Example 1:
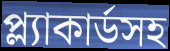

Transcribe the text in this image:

প্ল্যাকার্ডসহ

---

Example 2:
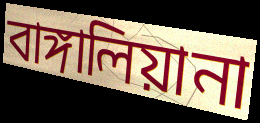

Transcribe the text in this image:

বাঙ্গালিয়ানা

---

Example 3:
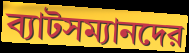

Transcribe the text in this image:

ব্যাটসম্যানদের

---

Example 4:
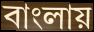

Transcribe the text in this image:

বাংলায়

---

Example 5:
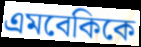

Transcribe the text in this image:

এমবেকিকে